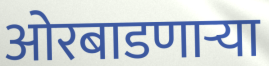
ओरबाडणाऱ्या